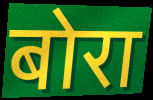
बोरा